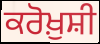
ਕਰੋਖ਼ੁਸ਼ੀ